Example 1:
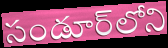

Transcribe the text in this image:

సండూర్‌లోని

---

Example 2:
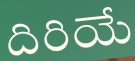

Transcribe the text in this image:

దిరియే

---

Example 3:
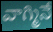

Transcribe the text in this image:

వాగ్మినే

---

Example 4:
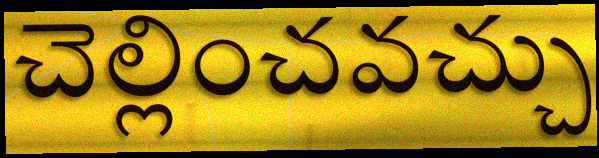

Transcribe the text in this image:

చెల్లించవచ్చు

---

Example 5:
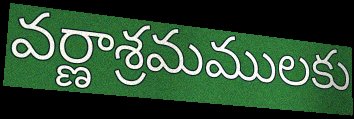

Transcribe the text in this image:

వర్ణాశ్రమములకు